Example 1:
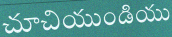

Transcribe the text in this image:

చూచియుండియు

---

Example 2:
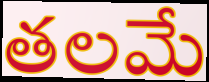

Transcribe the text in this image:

తలమే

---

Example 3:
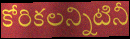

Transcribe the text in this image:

కోరికలన్నిటినీ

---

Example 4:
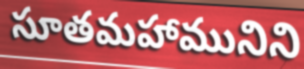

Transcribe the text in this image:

సూతమహామునిని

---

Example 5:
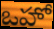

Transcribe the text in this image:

ఒహో